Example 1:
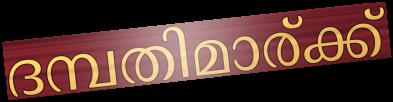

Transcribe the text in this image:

ദമ്പതിമാര്ക്ക്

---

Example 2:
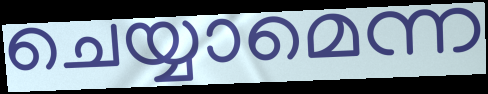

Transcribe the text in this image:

ചെയ്യാമെന്ന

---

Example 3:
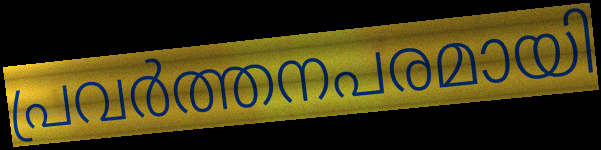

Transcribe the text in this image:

പ്രവർത്തനപരമായി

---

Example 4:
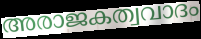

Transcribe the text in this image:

അരാജകത്വവാദം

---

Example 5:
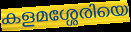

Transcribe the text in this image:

കളമശ്ശേരിയെ